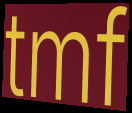
tmf